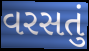
વરસતું